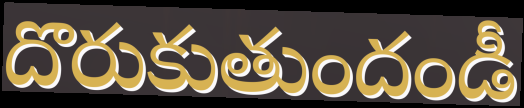
దొరుకుతుందండీ